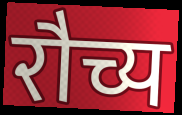
रौच्य